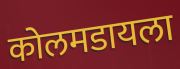
कोलमडायला